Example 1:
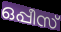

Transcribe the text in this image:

ഒപ്പീസ്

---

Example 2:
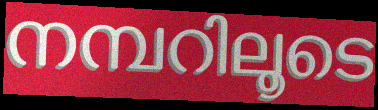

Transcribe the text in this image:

നമ്പറിലൂടെ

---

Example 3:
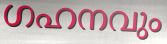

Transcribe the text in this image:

ഗഹനവും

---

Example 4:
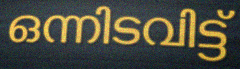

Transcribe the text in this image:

ഒന്നിടവിട്ട്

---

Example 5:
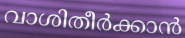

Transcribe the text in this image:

വാശിതീർക്കാൻ